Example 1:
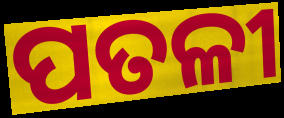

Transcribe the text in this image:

ପତଳୀ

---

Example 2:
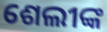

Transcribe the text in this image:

ଶେଲୀଙ୍କ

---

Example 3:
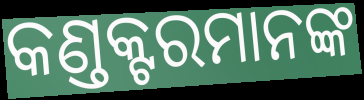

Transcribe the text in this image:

କଣ୍ଡକ୍ଟରମାନଙ୍କ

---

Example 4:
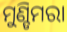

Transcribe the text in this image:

ମୁଣ୍ଡିମରା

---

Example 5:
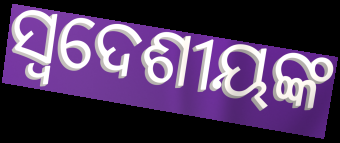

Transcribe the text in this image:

ସ୍ଵଦେଶୀୟଙ୍କ